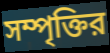
সম্পৃক্তির